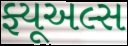
ફ્યૂઅલ્સ